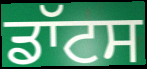
ਡਾੱਟਸ